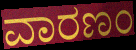
ವಾರಣಂ